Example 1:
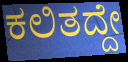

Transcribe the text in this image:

ಕಲಿತದ್ದೇ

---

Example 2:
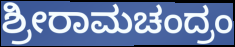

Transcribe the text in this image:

ಶ್ರೀರಾಮಚಂದ್ರಂ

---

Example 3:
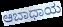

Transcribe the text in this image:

ಆಬಾಧಾಯ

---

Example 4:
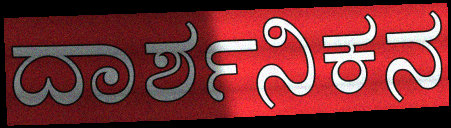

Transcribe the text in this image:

ದಾರ್ಶನಿಕನ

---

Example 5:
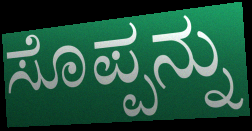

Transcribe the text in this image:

ಸೊಪ್ಪನ್ನು